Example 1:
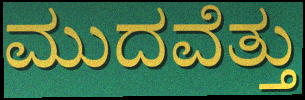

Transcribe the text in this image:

ಮುದವೆತ್ತು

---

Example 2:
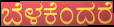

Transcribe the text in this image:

ಬೆಳಕೆಂದರೆ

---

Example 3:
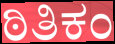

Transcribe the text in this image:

ಠಿತಿಕಂ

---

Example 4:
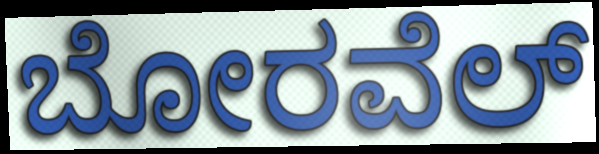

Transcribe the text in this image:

ಬೋರವೆಲ್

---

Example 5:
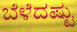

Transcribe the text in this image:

ಬೆಳೆದಷ್ಟು